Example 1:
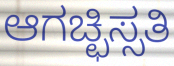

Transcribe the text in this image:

ಆಗಚ್ಛಿಸ್ಸತಿ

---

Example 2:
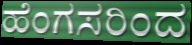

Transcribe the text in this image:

ಹೆಂಗಸರಿಂದ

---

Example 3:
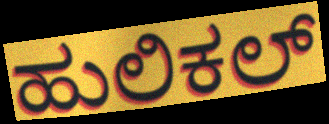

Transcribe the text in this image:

ಹುಲಿಕಲ್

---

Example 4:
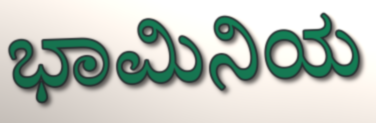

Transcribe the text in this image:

ಭಾಮಿನಿಯ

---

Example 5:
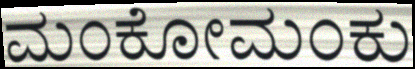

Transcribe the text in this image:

ಮಂಕೋಮಂಕು